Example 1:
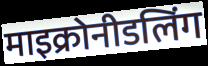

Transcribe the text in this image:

माइक्रोनीडलिंग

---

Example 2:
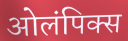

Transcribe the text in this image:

ओलंपिक्स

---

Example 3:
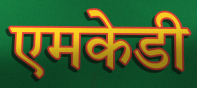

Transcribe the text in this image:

एमकेडी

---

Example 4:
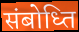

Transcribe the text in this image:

संबोध्ति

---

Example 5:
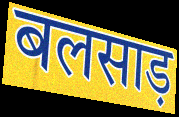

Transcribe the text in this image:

बलसाड़